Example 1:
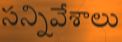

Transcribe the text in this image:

సన్నివేశాలు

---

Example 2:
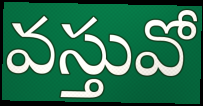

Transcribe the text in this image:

వస్తువో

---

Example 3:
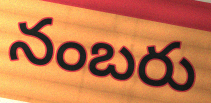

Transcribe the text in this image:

నంబరు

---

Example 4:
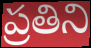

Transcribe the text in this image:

ప్రతిని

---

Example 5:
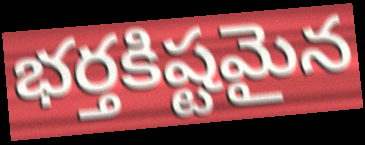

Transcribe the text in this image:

భర్తకిష్టమైన